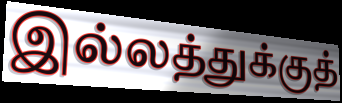
இல்லத்துக்குத்